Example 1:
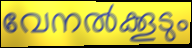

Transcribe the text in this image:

വേനൽക്കൂടും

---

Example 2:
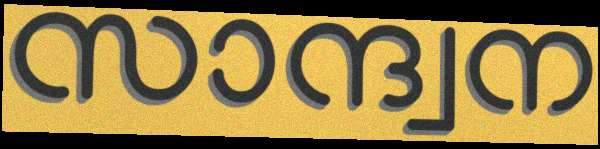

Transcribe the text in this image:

സാന്ദ്വന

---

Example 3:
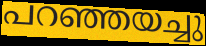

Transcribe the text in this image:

പറഞ്ഞയച്ചു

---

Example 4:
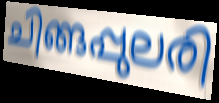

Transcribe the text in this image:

ചിങ്ങപ്പുലരി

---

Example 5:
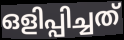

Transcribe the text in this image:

ഒളിപ്പിച്ചത്